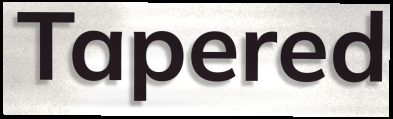
Tapered